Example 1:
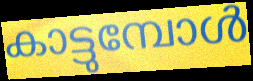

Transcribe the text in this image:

കാട്ടുമ്പോൾ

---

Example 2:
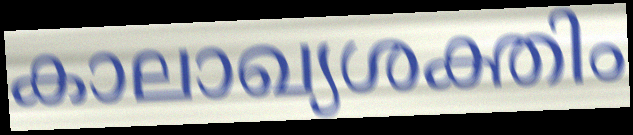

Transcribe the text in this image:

കാലാഖ്യശക്തിം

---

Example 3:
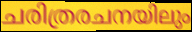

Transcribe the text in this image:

ചരിത്രരചനയിലും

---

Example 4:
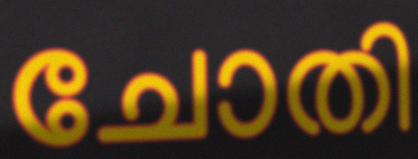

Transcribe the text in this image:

ചോതി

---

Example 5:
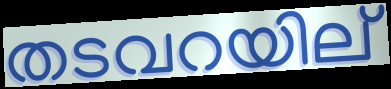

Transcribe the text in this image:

തടവറയില്